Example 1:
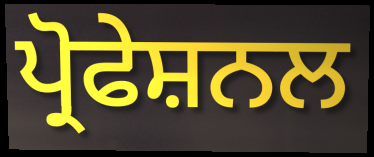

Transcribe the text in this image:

ਪ੍ਰੋਫੇਸ਼ਨਲ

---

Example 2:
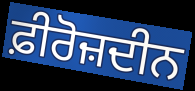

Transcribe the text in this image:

ਫ਼ੀਰੋਜ਼ਦੀਨ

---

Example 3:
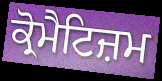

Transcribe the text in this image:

ਕ੍ਰੋਮੈਟਿਜ਼ਮ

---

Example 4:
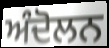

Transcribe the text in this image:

ਅੰਦੋਲਨ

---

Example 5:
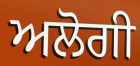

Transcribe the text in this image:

ਅਲੋਗੀ